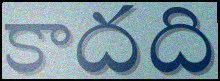
కాదది